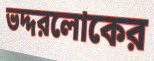
ভদ্দরলোকের